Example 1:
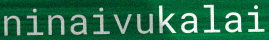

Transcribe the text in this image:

ninaivukalai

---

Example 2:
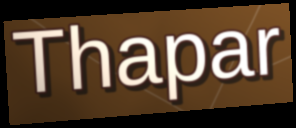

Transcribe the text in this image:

Thapar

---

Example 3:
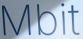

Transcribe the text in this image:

Mbit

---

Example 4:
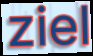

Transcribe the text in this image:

ziel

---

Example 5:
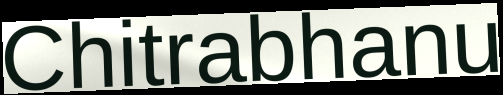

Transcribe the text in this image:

Chitrabhanu